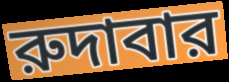
রুদাবার